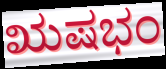
ಋಷಭಂ